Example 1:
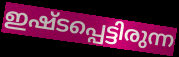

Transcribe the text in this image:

ഇഷ്ടപ്പെട്ടിരുന്ന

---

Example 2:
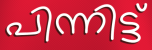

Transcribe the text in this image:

പിന്നിട്ട്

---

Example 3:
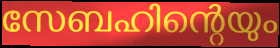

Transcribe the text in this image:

സേബഹിന്റെയും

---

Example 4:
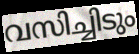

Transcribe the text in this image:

വസിച്ചിടും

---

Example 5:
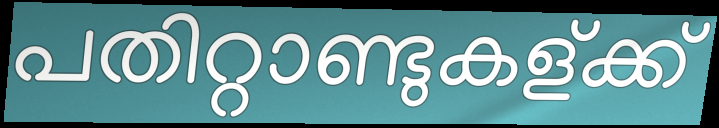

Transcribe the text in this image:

പതിറ്റാണ്ടുകള്ക്ക്